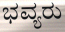
ಭವ್ಯರು